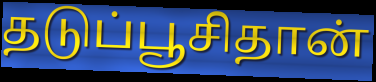
தடுப்பூசிதான்